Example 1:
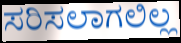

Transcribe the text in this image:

ಸರಿಸಲಾಗಲಿಲ್ಲ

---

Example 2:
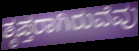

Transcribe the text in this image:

ತೃಪ್ತರಾಗಿರುವೆವು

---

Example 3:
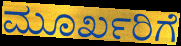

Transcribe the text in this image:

ಮೂರ್ಖರಿಗೆ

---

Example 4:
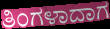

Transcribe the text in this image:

ತಿಂಗಳಾದಾಗ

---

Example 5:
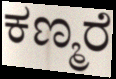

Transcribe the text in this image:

ಕಣ್ಮರೆ